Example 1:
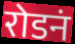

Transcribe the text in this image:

रोडनं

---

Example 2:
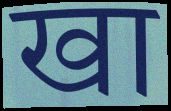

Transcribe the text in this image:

खा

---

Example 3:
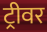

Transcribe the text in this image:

ट्रीवर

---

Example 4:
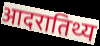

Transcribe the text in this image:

आदरातिथ्य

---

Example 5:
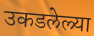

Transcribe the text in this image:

उकडलेल्या